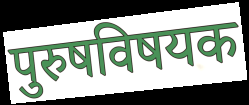
पुरुषविषयक